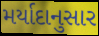
મર્યાદાનુસાર